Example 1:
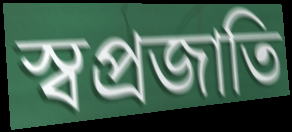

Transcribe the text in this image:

স্বপ্রজাতি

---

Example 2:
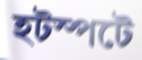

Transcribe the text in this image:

হটস্পটে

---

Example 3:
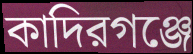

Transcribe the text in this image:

কাদিরগঞ্জে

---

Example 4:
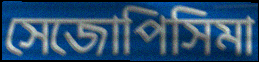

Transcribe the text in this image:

সেজোপিসিমা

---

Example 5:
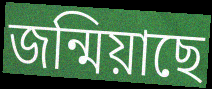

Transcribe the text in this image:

জন্মিয়াছে